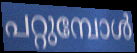
പറ്റുമ്പോൾ